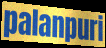
palanpuri